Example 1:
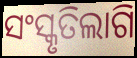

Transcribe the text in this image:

ସଂସ୍କୃତିଲାଗି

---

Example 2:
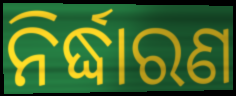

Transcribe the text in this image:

ନିର୍ଦ୍ଧାରଣ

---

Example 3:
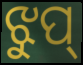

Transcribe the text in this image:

ଝୁପ୍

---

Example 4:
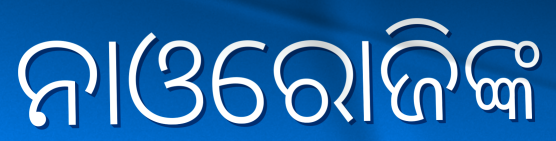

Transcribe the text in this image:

ନାଓରୋଜିଙ୍କ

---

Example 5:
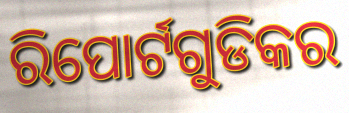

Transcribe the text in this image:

ରିପୋର୍ଟଗୁଡିକର